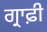
ਗ੍ਰਾਫ਼ੀ